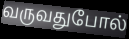
வருவதுபோல்